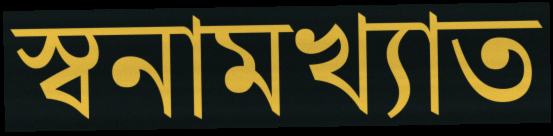
স্বনামখ্যাত